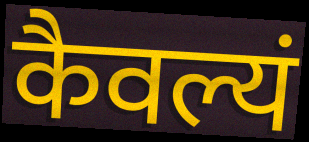
कैवल्यं